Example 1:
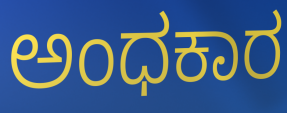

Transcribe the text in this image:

ಅಂಧಕಾರ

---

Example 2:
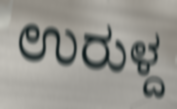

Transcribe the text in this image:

ಉರುಳ್ದ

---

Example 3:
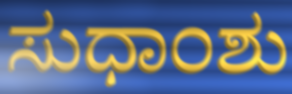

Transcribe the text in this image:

ಸುಧಾಂಶು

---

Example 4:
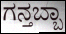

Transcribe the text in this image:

ಗನ್ತಬ್ಬಾ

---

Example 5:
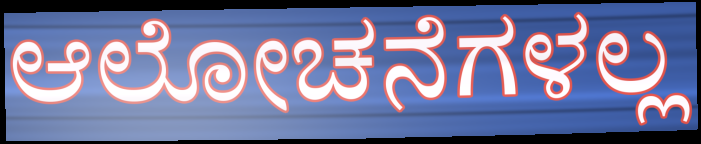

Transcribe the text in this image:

ಆಲೋಚನೆಗಳಲ್ಲ